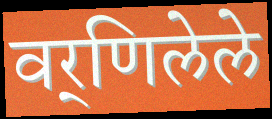
वर्णिलेले